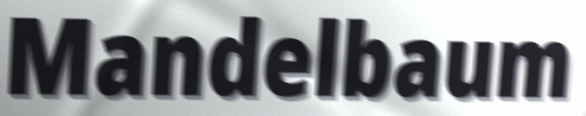
Mandelbaum